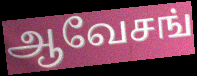
ஆவேசங்